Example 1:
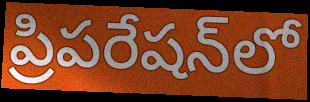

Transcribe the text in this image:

ప్రిపరేషన్‌లో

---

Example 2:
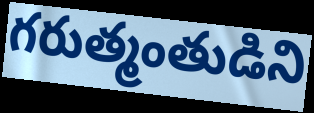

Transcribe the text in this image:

గరుత్మంతుడిని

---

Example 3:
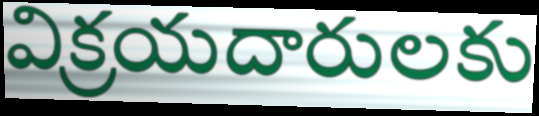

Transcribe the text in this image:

విక్రయదారులకు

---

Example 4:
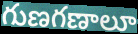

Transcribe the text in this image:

గుణగణాలూ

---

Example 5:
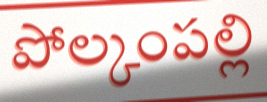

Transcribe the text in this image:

పోల్కంపల్లి